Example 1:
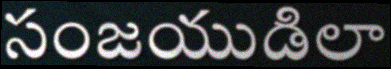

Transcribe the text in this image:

సంజయుడిలా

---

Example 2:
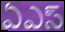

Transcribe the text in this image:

ఏఎస్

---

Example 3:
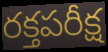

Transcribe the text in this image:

రక్తపరీక్ష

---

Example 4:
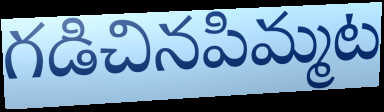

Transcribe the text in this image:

గడిచినపిమ్మట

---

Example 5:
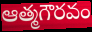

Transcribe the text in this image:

ఆత్మగౌరవం